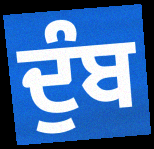
ਦੁੰਬ